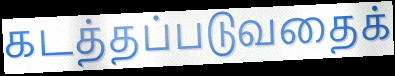
கடத்தப்படுவதைக்